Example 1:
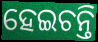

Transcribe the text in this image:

ହେଇଚନ୍ତି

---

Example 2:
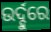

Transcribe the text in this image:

ଉର୍ଦ୍ଦୁରେ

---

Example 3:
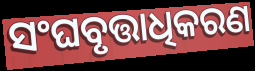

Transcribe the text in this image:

ସଂଘବୃତ୍ତାଧିକରଣ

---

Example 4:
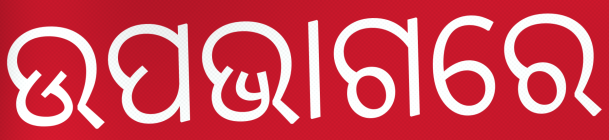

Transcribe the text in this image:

ଉପଭାଗରେ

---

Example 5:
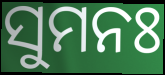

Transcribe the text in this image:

ସୁମନଃ